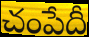
చంపేదీ